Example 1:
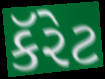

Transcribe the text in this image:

કૅરેટ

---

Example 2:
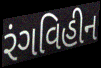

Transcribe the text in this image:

રંગવિહીન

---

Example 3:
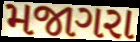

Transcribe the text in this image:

મજાગરા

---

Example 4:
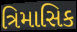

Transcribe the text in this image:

ત્રિમાસિક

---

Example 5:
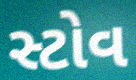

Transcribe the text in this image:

સ્ટોવ